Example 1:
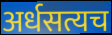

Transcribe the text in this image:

अर्धसत्यच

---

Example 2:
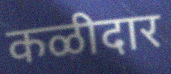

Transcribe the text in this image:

कळीदार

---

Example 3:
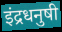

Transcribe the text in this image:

इंद्रधनुषी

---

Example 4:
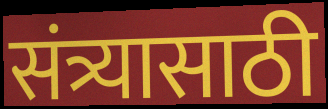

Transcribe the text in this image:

संत्र्यासाठी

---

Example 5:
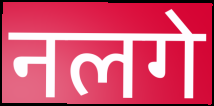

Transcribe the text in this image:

नलगे